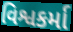
વિશ્વકર્મા